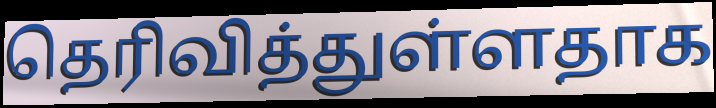
தெரிவித்துள்ளதாக